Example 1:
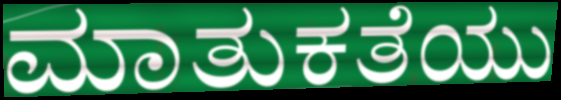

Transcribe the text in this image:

ಮಾತುಕತೆಯು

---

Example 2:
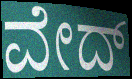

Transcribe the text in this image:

ವೇದ್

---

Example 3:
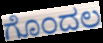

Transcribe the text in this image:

ಗೊಂದಲ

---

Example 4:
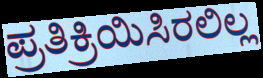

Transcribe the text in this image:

ಪ್ರತಿಕ್ರಿಯಿಸಿರಲಿಲ್ಲ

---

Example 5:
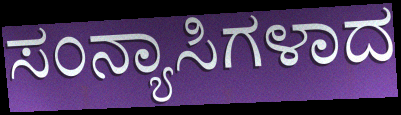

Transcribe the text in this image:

ಸಂನ್ಯಾಸಿಗಳಾದ